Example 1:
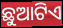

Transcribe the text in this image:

ଛୁଆଟିଏ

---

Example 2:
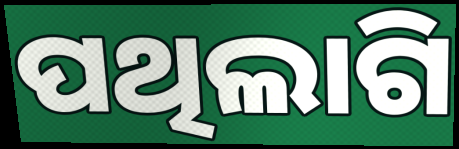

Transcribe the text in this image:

ପଥିଲାଗି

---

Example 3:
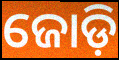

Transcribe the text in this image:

ଜୋଡ଼ି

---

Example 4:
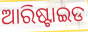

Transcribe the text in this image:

ଆରିଷ୍ଟାଇଡ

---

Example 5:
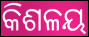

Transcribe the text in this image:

କିଶଳୟ